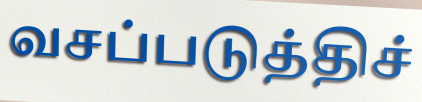
வசப்படுத்திச்